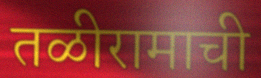
तळीरामाची